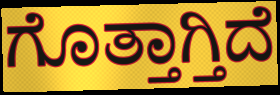
ಗೊತ್ತಾಗ್ತಿದೆ